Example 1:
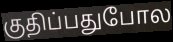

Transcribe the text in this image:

குதிப்பதுபோல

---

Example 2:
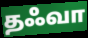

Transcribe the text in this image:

தஃவா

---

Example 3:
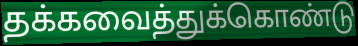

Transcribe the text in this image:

தக்கவைத்துக்கொண்டு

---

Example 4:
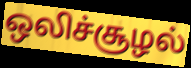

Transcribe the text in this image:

ஒலிச்சூழல்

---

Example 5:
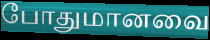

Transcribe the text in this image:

போதுமானவை